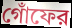
গোঁফের